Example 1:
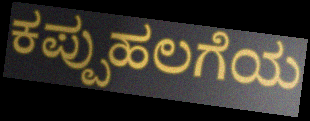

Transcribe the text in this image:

ಕಪ್ಪುಹಲಗೆಯ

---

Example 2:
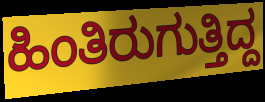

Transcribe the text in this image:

ಹಿಂತಿರುಗುತ್ತಿದ್ದ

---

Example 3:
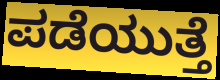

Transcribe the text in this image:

ಪಡೆಯುತ್ತೆ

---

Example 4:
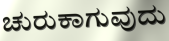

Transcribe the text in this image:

ಚುರುಕಾಗುವುದು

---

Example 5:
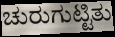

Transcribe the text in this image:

ಚುರುಗುಟ್ಟಿತು